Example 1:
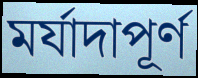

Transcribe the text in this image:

মর্যাদাপূর্ণ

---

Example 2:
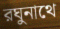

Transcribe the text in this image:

রঘুনাথে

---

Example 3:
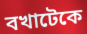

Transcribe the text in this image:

বখাটেকে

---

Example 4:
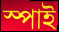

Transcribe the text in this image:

স্পাই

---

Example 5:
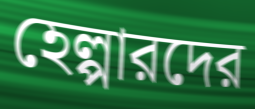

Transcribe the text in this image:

হেল্পারদের